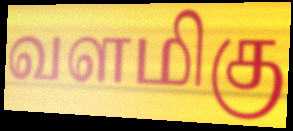
வளமிகு